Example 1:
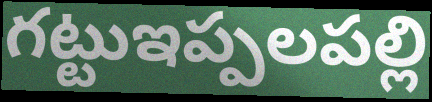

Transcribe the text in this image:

గట్టుఇప్పలపల్లి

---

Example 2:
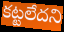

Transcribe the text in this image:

కట్టలేదని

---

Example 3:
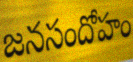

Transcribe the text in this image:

జనసందోహం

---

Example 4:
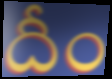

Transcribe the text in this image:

దీం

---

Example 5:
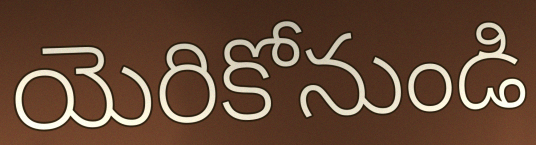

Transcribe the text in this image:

యెరికోనుండి